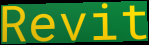
Revit